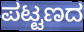
ಪಟ್ಟಣದ